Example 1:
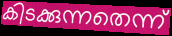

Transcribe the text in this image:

കിടക്കുന്നതെന്ന്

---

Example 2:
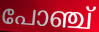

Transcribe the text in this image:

പോഞ്ച്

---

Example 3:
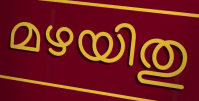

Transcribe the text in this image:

മഴയിതു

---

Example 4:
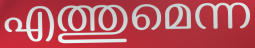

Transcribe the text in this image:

എത്തുമെന്ന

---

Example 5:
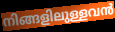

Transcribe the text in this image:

നിങ്ങളിലുള്ളവൻ